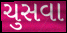
ચુસવા